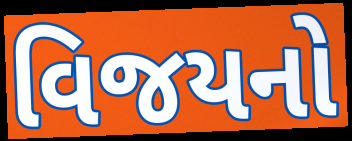
વિજયનો